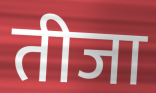
तीजा